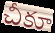
చీకూ